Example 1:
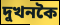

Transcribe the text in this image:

দুখনকৈ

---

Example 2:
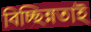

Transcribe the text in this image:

বিচ্ছিন্নতাই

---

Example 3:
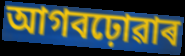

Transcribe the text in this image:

আগবঢ়োৱাৰ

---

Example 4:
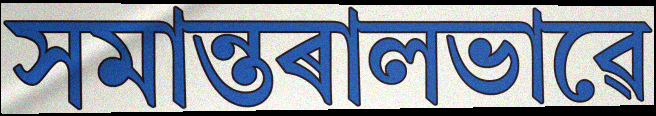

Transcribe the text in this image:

সমান্তৰালভাৱে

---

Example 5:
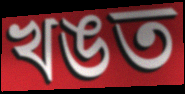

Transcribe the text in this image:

খঙত